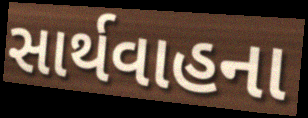
સાર્થવાહના